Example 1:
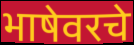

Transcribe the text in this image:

भाषेवरचे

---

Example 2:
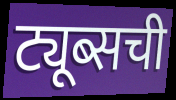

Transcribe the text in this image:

ट्यूब्सची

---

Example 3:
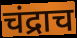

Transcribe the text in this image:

चंद्राच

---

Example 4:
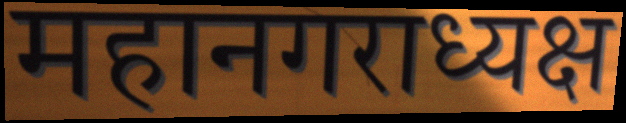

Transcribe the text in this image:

महानगराध्यक्ष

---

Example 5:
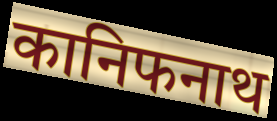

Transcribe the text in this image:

कानिफनाथ